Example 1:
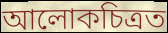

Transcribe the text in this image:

আলোকচিত্ৰত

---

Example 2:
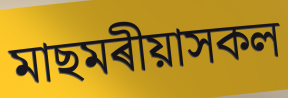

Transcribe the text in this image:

মাছমৰীয়াসকল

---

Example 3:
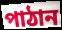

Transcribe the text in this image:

পাঠান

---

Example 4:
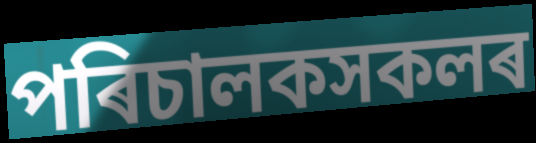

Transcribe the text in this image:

পৰিচালকসকলৰ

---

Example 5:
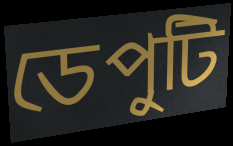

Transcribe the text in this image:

ডেপুটি